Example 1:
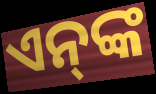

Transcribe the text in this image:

ଏନ୍‌ଙ୍କ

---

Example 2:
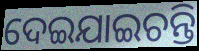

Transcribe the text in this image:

ଦେଇଯାଇଚନ୍ତି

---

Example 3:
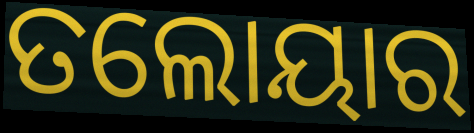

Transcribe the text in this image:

ତଲୋୟାର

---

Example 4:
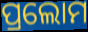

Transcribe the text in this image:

ପ୍ରଲୋମ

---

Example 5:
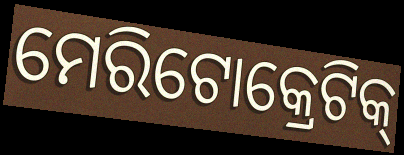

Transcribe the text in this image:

ମେରିଟୋକ୍ରେଟିକ୍